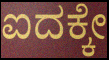
ಐದಕ್ಕೇ